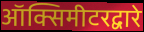
ऑक्सिमीटरद्वारे